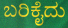
ಬರಿಕೈದು